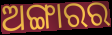
ଅଙ୍ଗାରର